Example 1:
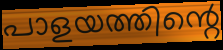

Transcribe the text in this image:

പാളയത്തിന്റെ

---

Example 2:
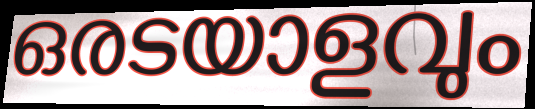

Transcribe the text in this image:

ഒരടയാളവും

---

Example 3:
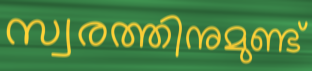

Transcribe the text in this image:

സ്വരത്തിനുമുണ്ട്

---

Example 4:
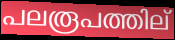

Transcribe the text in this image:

പലരൂപത്തില്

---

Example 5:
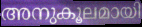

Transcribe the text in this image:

അനുകൂലമായി